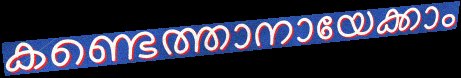
കണ്ടെത്താനായേക്കാം